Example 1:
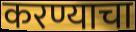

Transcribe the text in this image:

करण्याचा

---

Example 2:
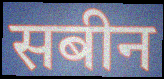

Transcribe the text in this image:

सबीन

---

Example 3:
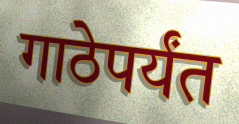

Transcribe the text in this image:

गाठेपर्यंत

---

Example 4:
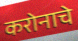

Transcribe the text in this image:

करोनाचे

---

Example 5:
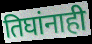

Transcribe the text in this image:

तिघांनाही